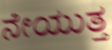
ನೇಯುತ್ತ